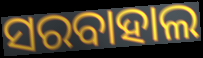
ସରବାହାଲ